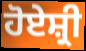
ਹੋਏਸ਼੍ਰੀ